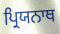
ਪ੍ਰਿਯਨਾਥ